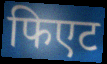
फिएट